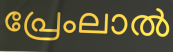
പ്രേംലാൽ